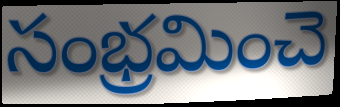
సంభ్రమించె